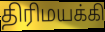
திரிமயக்கி